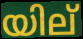
യില്